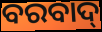
ବରବାଦ୍